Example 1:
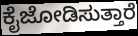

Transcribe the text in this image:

ಕೈಜೋಡಿಸುತ್ತಾರೆ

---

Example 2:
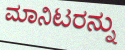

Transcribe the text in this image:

ಮಾನಿಟರನ್ನು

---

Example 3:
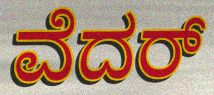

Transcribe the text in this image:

ವೆದರ್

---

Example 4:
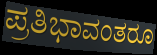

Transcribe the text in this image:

ಪ್ರತಿಭಾವಂತರೂ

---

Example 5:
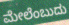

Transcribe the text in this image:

ಮೇಲೆಂಬುದು